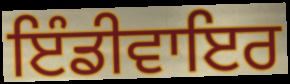
ਇੰਡੀਵਾਇਰ